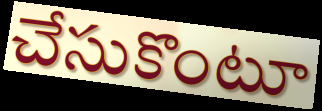
చేసుకొంటూ